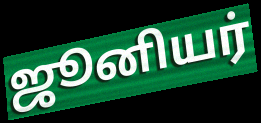
ஜூனியர்